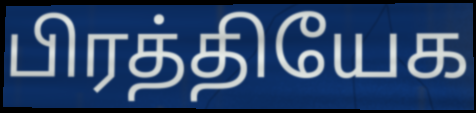
பிரத்தியேக